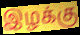
இழக்கு